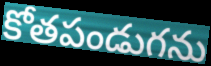
కోతపండుగను